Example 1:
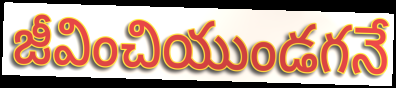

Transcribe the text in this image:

జీవించియుండగనే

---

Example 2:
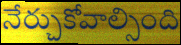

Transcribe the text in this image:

నేర్చుకోవాల్సింది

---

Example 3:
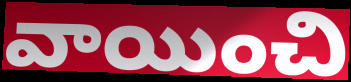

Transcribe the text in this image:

వాయించి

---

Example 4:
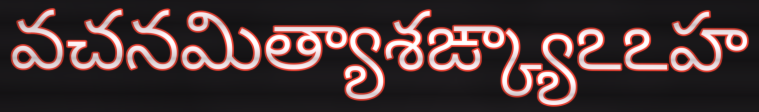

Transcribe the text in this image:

వచనమిత్యాశఙ్క్యాఽఽహ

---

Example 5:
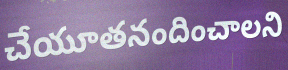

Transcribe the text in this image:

చేయూతనందించాలని